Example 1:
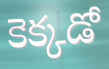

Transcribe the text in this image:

కెక్కడో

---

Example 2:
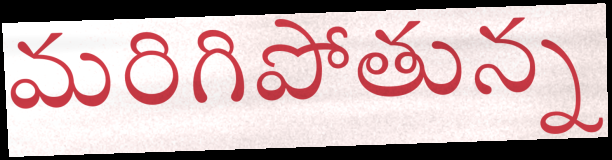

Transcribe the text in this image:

మరిగిపోతున్న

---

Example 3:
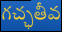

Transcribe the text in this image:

గచ్ఛతీవ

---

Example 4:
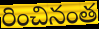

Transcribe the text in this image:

రించినంత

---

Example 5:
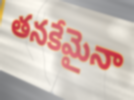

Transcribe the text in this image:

తనకేమైనా